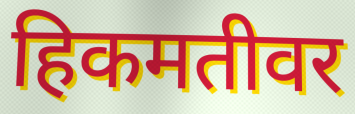
हिकमतीवर